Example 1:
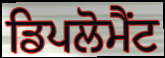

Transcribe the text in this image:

ਡਿਪਲੋਮੈਂਟ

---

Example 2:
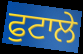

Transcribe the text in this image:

ਫੁਟਾਲੇ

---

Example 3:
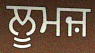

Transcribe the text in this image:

ਲੂਮਜ਼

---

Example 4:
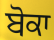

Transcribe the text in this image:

ਬੋਕਾ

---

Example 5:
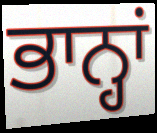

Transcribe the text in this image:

ਭਾਨ੍ਹਾਂ